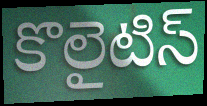
కొలైటిస్